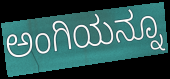
ಅಂಗಿಯನ್ನೂ